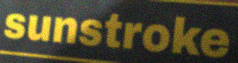
sunstroke